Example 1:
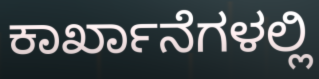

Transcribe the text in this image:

ಕಾರ್ಖಾನೆಗಳಲ್ಲಿ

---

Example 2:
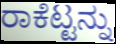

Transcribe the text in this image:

ರಾಕೆಟ್ಟನ್ನು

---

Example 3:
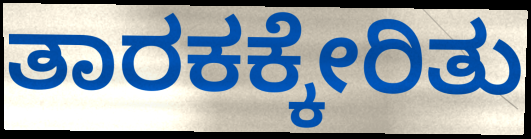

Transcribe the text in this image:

ತಾರಕಕ್ಕೇರಿತು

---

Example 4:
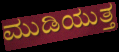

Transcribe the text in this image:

ಮುಡಿಯುತ್ತ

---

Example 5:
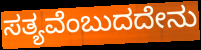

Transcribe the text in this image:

ಸತ್ಯವೆಂಬುದದೇನು